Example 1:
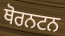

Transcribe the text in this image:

ਥੋਰਨਟਨ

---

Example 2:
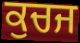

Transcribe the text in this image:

ਕੁਚਜ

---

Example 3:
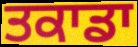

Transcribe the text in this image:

ਤਕਾਡਾ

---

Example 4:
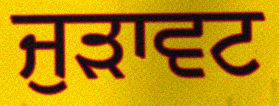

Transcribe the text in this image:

ਜੁੜਾਵਟ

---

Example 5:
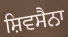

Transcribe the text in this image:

ਸ਼ਿਵਸੈਨਾ